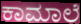
ಕಾಮಾಲೆ